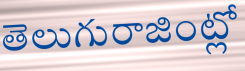
తెలుగురాజింట్లో